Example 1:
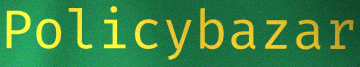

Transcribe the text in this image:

Policybazar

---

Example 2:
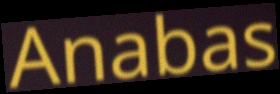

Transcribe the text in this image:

Anabas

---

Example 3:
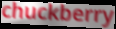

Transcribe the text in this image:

chuckberry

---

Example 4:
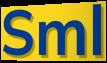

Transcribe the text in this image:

Sml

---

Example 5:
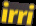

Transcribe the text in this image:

irri